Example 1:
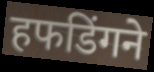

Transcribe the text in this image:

हफडिंगने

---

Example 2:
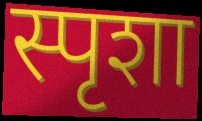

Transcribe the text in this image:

स्पृशा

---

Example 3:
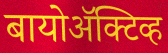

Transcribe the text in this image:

बायोॲक्टिव्ह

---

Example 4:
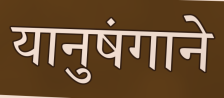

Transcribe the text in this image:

यानुषंगाने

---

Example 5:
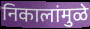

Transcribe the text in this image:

निकालांमुळे